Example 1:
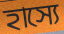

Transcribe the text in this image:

হাস্যে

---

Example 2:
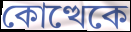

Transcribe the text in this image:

কোত্থেকে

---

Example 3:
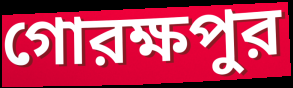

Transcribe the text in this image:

গোরক্ষপুর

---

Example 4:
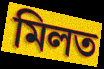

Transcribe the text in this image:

মিলত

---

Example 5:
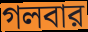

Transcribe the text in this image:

গলবার